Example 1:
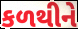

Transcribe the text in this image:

કળથીને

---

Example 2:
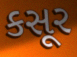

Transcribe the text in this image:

કસૂર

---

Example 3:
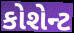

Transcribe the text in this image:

કોશેન્ટ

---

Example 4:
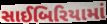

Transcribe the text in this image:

સાઈબિરિયામાં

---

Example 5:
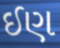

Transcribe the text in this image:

ઈણ